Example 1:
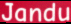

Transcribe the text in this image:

Jandu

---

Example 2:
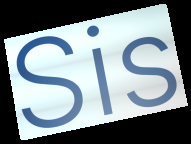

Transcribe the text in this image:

Sis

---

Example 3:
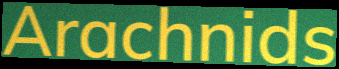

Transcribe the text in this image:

Arachnids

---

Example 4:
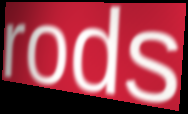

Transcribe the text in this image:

rods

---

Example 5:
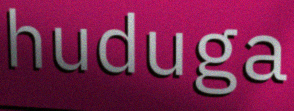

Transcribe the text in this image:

huduga